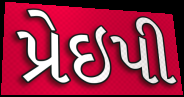
પ્રેઇપી